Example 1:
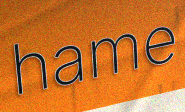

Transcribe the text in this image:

hame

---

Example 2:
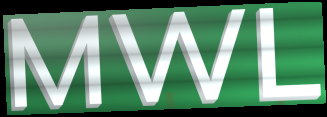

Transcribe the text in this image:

MWL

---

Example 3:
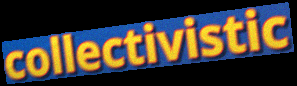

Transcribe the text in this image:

collectivistic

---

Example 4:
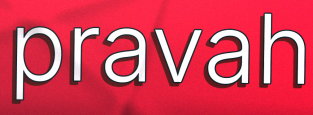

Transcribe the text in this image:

pravah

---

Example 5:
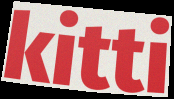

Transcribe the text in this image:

kitti